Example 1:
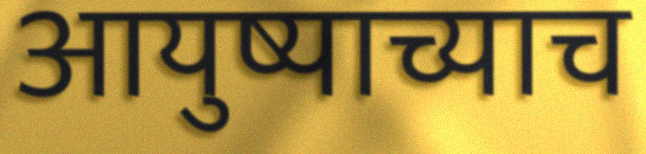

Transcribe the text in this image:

आयुष्याच्याच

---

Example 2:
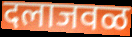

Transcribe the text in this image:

दलाजवळ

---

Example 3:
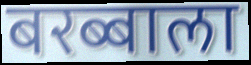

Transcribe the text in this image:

बरब्बाला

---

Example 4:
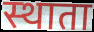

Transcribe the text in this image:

स्थाता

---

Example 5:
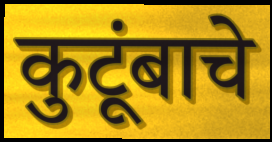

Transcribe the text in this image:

कुटूंबाचे